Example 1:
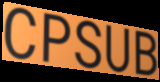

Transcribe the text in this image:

CPSUB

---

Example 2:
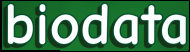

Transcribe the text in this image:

biodata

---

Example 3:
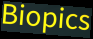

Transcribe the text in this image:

Biopics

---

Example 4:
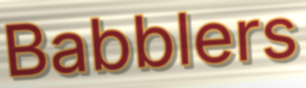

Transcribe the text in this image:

Babblers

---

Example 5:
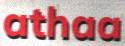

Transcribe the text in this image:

athaa